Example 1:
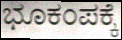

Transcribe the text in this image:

ಭೂಕಂಪಕ್ಕೆ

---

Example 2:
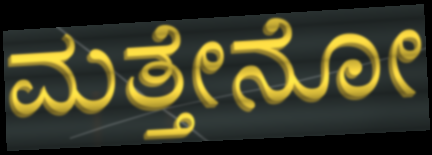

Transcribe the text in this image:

ಮತ್ತೇನೋ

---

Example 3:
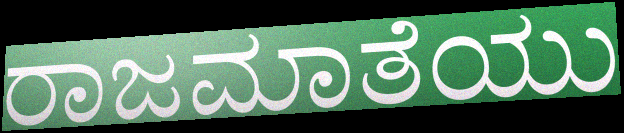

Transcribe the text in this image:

ರಾಜಮಾತೆಯು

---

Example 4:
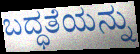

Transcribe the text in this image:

ಬದ್ಧತೆಯನ್ನು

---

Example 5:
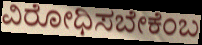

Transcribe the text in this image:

ವಿರೋಧಿಸಬೇಕೆಂಬ